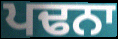
ਪਢਨਾ